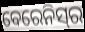
ବେରେନିସ୍‌ର